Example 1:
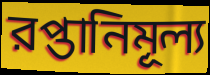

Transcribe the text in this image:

রপ্তানিমূল্য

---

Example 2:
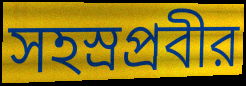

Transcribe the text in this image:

সহস্রপ্রবীর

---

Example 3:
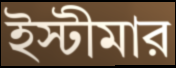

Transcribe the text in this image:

ইস্টীমার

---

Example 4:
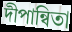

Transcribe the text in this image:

দীপান্বিতা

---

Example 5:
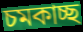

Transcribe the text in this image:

চমকাচ্ছ